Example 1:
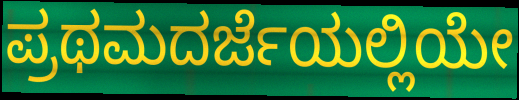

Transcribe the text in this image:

ಪ್ರಥಮದರ್ಜೆಯಲ್ಲಿಯೇ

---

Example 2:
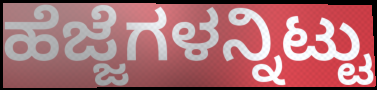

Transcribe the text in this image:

ಹೆಜ್ಜೆಗಳನ್ನಿಟ್ಟು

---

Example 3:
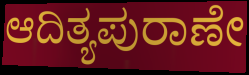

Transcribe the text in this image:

ಆದಿತ್ಯಪುರಾಣೇ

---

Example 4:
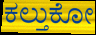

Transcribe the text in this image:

ಕಲ್ತುಕೋ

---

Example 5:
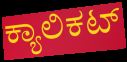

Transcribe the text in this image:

ಕ್ಯಾಲಿಕಟ್